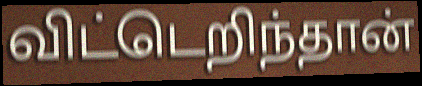
விட்டெறிந்தான்